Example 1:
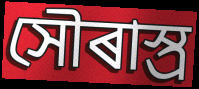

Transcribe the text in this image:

সৌৰাস্ত্ৰ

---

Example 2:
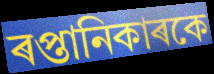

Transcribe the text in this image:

ৰপ্তানিকাৰকে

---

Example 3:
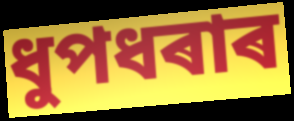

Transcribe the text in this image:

ধুপধৰাৰ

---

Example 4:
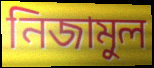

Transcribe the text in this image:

নিজামুল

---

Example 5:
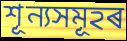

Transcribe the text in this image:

শূন্যসমূহৰ